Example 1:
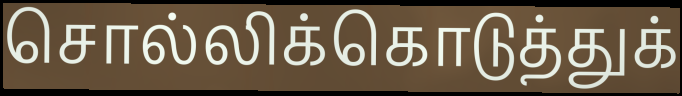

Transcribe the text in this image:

சொல்லிக்கொடுத்துக்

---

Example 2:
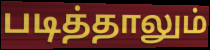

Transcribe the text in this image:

படித்தாலும்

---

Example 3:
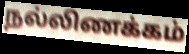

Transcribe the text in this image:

நல்லிணக்கம்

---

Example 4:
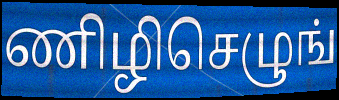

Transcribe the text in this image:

ணிழிசெழுங்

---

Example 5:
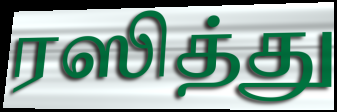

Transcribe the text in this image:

ரஸித்து